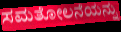
ಸಮತೋಲನೆಯನ್ನು